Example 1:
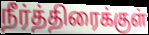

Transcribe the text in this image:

நீர்த்திரைக்குள்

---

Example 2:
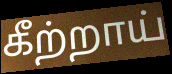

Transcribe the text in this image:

கீற்றாய்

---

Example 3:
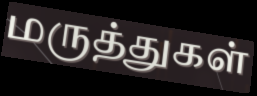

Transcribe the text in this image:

மருத்துகள்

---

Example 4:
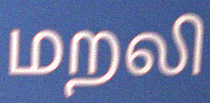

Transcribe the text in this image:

மறலி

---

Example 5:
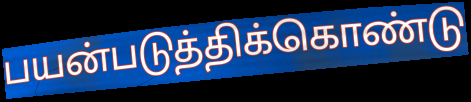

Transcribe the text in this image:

பயன்படுத்திக்கொண்டு